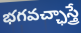
భగవచ్ఛాస్త్రే